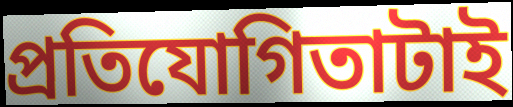
প্রতিযোগিতাটাই